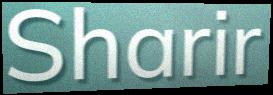
Sharir